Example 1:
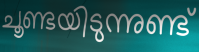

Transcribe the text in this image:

ചൂണ്ടയിടുന്നുണ്ട്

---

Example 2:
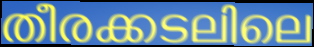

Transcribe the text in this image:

തീരക്കടലിലെ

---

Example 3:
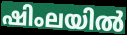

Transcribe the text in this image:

ഷിംലയിൽ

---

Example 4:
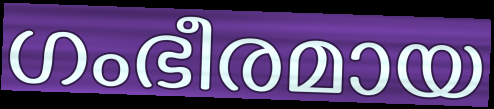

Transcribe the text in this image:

ഗംഭീരമായ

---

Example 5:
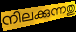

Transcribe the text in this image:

നിലക്കുന്നതു